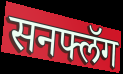
सनफ्लॅग